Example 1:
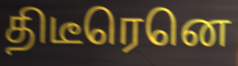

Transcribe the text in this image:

திடீரெனெ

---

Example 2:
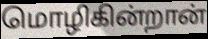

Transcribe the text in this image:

மொழிகின்றான்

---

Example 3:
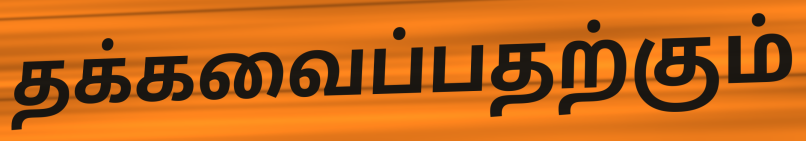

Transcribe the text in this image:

தக்கவைப்பதற்கும்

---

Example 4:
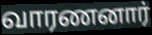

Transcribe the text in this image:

வாரணனார்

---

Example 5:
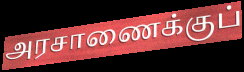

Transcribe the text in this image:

அரசாணைக்குப்